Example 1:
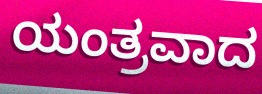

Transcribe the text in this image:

ಯಂತ್ರವಾದ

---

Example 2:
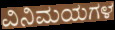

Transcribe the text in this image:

ವಿನಿಮಯಗಳ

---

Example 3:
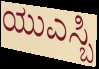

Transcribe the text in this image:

ಯುಎಸ್ಬಿ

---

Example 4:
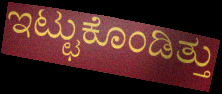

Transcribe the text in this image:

ಇಟ್ಟುಕೊಂಡಿತ್ತು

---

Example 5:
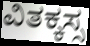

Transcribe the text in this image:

ವಿತಕ್ಕಸ್ಸ